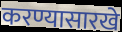
करण्यासारखे